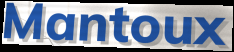
Mantoux